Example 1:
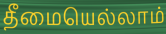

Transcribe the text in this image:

தீமையெல்லாம்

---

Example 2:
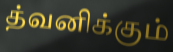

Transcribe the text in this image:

த்வனிக்கும்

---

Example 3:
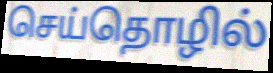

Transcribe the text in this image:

செய்தொழில்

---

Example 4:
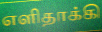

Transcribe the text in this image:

எளிதாக்கி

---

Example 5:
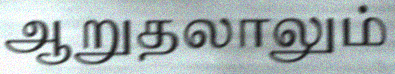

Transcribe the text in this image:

ஆறுதலாலும்